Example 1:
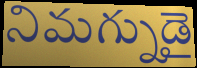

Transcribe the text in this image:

నిమగ్నుడై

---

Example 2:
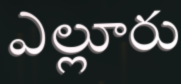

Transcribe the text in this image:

ఎల్లూరు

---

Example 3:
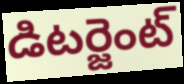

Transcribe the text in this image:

డిటర్జెంట్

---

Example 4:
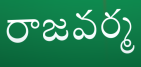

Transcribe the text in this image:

రాజవర్మ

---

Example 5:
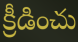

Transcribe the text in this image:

క్రీడించు